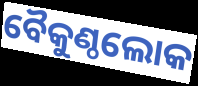
ବୈକୁଣ୍ଠଲୋକ